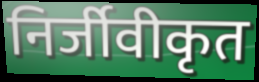
निर्जीवीकृत